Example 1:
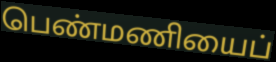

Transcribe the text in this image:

பெண்மணியைப்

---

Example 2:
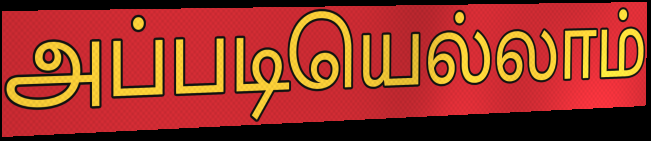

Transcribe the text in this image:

அப்படியெல்லாம்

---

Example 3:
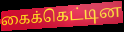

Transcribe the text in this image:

கைக்கெட்டின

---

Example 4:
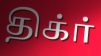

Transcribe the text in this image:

திக்ர்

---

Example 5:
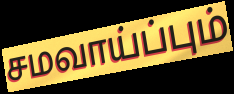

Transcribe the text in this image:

சமவாய்ப்பும்